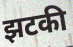
झटकी